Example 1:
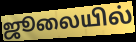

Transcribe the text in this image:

ஜூலையில்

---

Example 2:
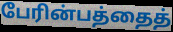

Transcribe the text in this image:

பேரின்பத்தைத்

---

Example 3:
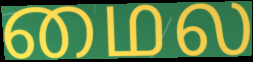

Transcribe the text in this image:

மைல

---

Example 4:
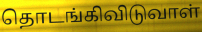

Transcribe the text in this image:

தொடங்கிவிடுவாள்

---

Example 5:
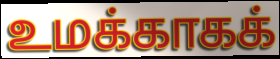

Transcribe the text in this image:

உமக்காகக்